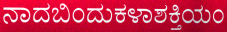
ನಾದಬಿಂದುಕಳಾಶಕ್ತಿಯಂ